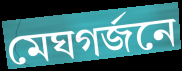
মেঘগর্জনে